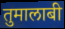
तुमालाबी